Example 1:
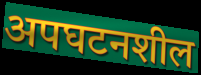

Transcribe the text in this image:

अपघटनशील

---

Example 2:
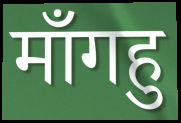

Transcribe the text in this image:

माँगहु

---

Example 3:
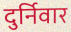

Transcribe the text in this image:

दुर्निवार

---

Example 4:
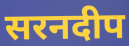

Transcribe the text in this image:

सरनदीप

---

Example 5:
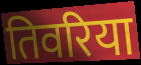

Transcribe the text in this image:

तिवरिया